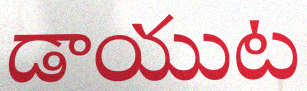
డాయుట